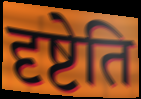
दृष्टेति